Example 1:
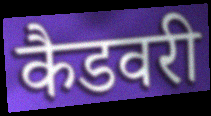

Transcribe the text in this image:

कैडवरी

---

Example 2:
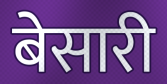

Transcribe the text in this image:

बेसारी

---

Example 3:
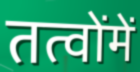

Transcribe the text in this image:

तत्वोंमें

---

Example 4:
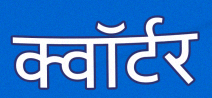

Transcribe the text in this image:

क्वॉर्टर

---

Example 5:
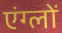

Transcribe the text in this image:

एंग्लों